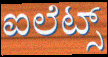
ಐಲೆಟ್ಸ್